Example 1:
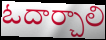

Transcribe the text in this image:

ఓదార్చాలి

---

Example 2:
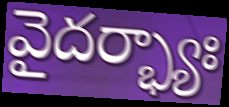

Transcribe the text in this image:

వైదర్భ్యాః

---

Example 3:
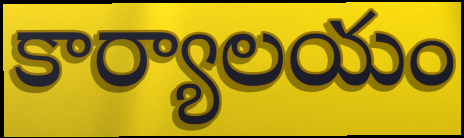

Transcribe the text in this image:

కార్యాలయం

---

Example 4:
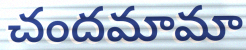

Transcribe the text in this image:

చందమామా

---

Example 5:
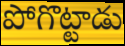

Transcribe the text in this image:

పోగొట్టాడు